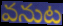
వనుట